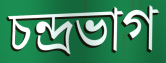
চন্দ্রভাগ